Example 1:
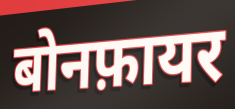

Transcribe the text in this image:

बोनफ़ायर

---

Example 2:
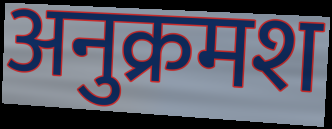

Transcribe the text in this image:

अनुक्रमश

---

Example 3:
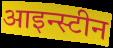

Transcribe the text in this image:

आइन्स्टीन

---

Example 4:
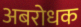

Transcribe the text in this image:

अबरोधक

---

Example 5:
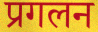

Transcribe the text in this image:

प्रगलन